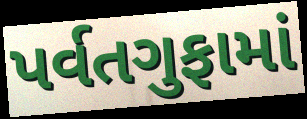
પર્વતગુફામાં